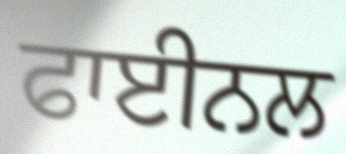
ਫਾਈਨਲ